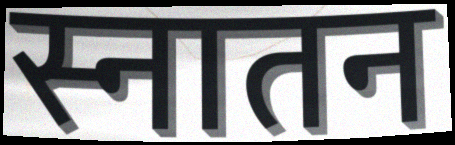
स्नातन